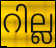
റില്ല